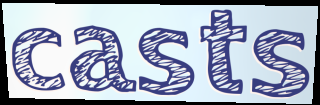
casts